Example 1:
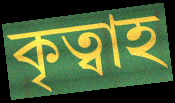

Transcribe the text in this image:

কৃত্বাহ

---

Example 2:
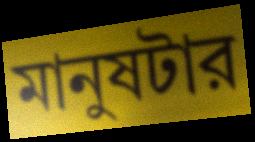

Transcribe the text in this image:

মানুষটার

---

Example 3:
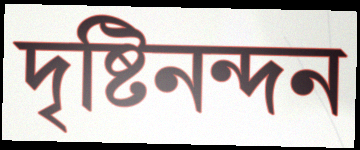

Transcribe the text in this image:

দৃষ্টিনন্দন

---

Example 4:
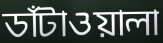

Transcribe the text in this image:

ডাঁটাওয়ালা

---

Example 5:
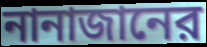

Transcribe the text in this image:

নানাজানের